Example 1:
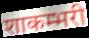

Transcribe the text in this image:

शाकम्भरी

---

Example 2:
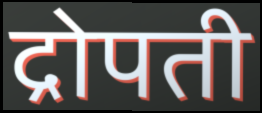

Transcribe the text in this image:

द्रोपती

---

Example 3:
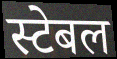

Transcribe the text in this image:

स्टेबल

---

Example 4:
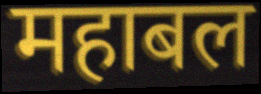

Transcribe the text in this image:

महाबल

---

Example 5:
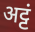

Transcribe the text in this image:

अट्टं